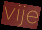
vije